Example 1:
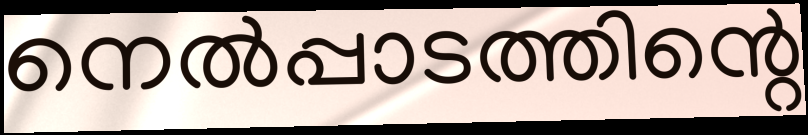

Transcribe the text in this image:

നെൽപ്പാടത്തിന്റെ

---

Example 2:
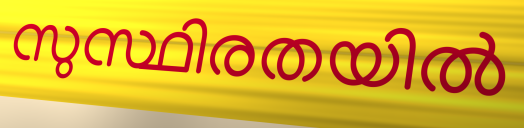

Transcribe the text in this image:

സുസ്ഥിരതയിൽ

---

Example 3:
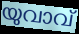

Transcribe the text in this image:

യുവാവ്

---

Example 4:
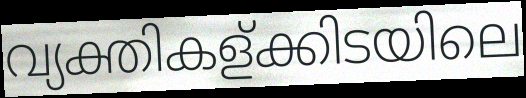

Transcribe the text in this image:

വ്യക്തികള്ക്കിടയിലെ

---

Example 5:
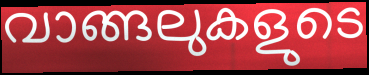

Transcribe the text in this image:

വാങ്ങലുകളുടെ